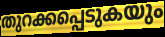
തുറക്കപ്പെടുകയും